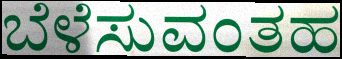
ಬೆಳೆಸುವಂತಹ